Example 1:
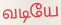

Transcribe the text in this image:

வடியே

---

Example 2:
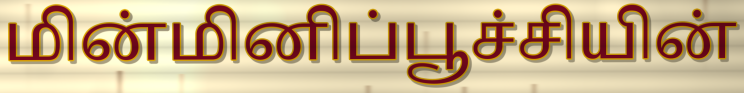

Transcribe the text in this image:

மின்மினிப்பூச்சியின்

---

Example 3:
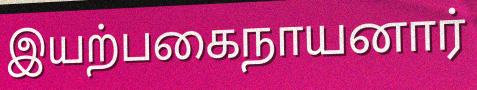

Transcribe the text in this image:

இயற்பகைநாயனார்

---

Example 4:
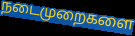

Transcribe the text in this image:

நடைமுறைகளை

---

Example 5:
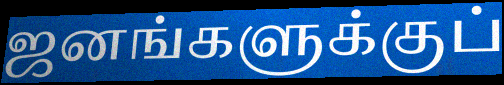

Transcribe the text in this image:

ஜனங்களுக்குப்